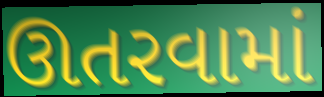
ઊતરવામાં